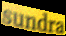
sundra